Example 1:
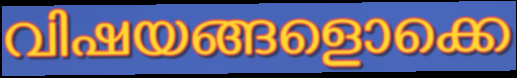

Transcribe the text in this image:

വിഷയങ്ങളൊക്കെ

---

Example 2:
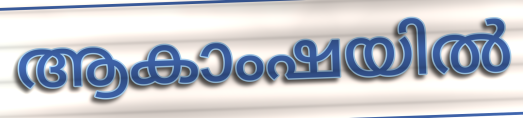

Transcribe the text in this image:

ആകാംഷയിൽ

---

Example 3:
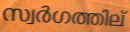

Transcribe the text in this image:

സ്വർഗത്തില്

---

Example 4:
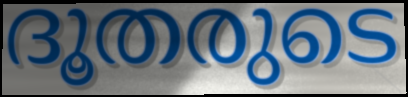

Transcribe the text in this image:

ദൂതരുടെ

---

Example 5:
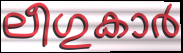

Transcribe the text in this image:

ലീഗുകാർ